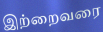
இற்றைவரை